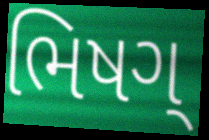
ભિષગ્